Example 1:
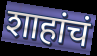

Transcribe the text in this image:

शाहांचं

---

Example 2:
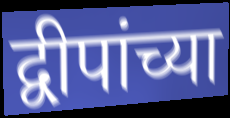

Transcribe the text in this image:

द्वीपांच्या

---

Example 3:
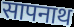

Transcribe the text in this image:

सापनाथ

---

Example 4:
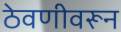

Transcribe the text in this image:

ठेवणीवरून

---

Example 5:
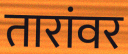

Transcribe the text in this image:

तारांवर